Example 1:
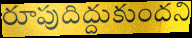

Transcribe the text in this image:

రూపుదిద్దుకుందని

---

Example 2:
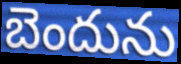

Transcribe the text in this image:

బెందును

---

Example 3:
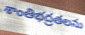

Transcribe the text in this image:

శాంతిభద్రతలను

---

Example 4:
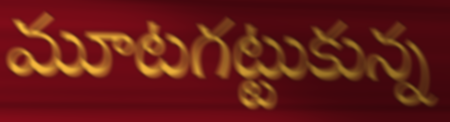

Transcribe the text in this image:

మూటగట్టుకున్న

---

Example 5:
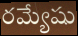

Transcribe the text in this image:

రమ్యేషు